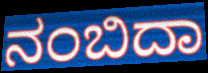
ನಂಬಿದಾ